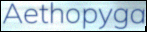
Aethopyga